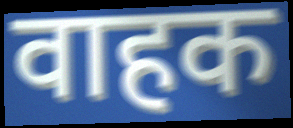
वाहक